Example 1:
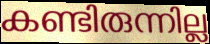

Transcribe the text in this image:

കണ്ടിരുന്നില്ല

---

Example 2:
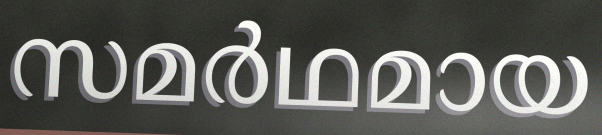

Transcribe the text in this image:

സമർഥമായ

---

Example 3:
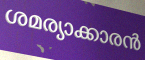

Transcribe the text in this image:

ശമര്യാക്കാരൻ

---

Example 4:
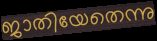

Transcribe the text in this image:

ജാതിയേതെന്നു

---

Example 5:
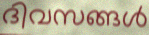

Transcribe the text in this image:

ദിവസങ്ങൾ